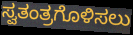
ಸ್ವತಂತ್ರಗೊಳಿಸಲು